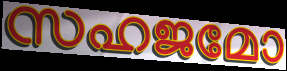
സഹജമോ